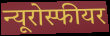
न्यूरोस्फीयर